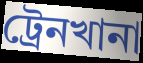
ট্রেনখানা